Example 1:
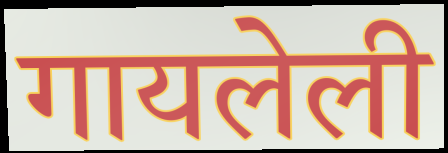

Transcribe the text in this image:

गायलेली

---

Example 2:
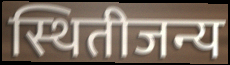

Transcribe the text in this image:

स्थितीजन्य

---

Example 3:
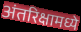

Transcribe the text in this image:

अंतरिक्षामध्ये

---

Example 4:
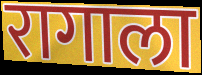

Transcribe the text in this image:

रागाला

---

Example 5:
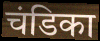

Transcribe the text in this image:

चंडिका